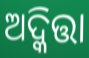
ଅଦ୍କିତ୍ତା